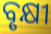
ବୃକ୍ଷୀ